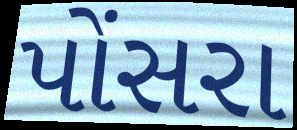
પોંસરા